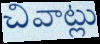
చివాట్లు